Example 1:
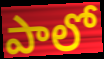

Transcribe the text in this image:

పాలో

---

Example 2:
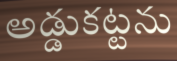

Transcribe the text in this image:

అడ్డుకట్టను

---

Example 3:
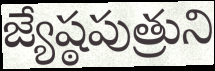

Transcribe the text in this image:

జ్యేష్ఠపుత్రుని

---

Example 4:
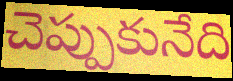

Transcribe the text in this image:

చెప్పుకునేది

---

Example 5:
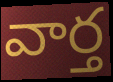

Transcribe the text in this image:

వార్త